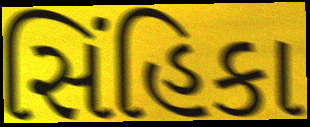
સિંહિકા